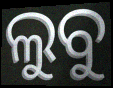
ଲୁବୁ